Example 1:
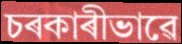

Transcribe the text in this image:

চৰকাৰীভাৱে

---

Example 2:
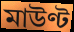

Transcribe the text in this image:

মাউণ্ট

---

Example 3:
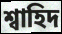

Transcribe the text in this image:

শ্বাহিদ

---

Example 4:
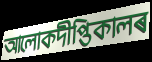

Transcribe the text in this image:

আলোকদীপ্তিকালৰ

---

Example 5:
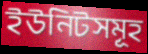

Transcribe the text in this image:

ইউনিটসমূহ